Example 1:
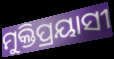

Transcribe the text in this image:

ମୁକ୍ତିପ୍ରୟାସୀ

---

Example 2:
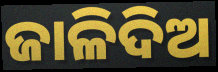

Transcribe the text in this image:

ଜାଳିଦିଅ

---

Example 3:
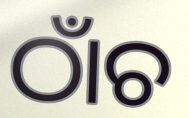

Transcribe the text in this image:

ଠାଁଚ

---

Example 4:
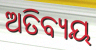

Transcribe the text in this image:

ଅତିବ୍ୟୟ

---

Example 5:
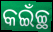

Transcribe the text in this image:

କଇଁଚ୍ଛ